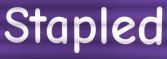
Stapled